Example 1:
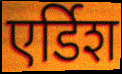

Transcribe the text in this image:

एर्डिश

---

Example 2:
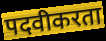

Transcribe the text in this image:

पदवीकरता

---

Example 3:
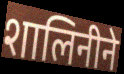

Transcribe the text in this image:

शालिनीने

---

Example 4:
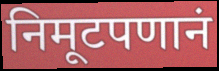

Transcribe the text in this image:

निमूटपणानं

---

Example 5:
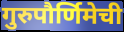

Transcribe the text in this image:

गुरुपौर्णिमेची